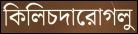
কিলিচদারোগলু